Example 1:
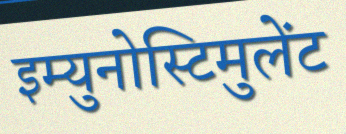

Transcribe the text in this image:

इम्युनोस्टिमुलेंट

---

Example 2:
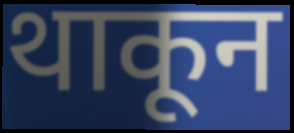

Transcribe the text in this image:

थाकून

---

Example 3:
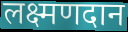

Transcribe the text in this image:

लक्ष्मणदान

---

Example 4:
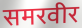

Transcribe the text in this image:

समरवीर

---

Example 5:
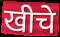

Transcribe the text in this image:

खीचे